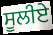
ਸੂਲੀਏ